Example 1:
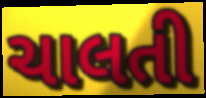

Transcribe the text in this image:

ચાલતી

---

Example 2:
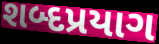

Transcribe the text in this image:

શબ્દપ્રયાગ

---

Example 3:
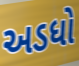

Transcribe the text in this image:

અડધો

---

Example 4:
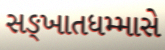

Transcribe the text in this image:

સઙ્ખાતધમ્માસે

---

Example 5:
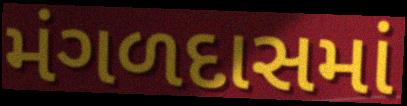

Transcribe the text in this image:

મંગળદાસમાં